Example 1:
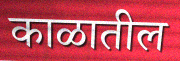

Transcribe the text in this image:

काळातील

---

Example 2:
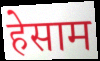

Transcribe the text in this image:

हेसाम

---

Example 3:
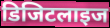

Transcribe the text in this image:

डिजिटलाइज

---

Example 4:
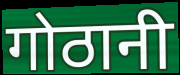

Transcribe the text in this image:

गोठानी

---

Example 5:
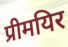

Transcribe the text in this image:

प्रीमयिर